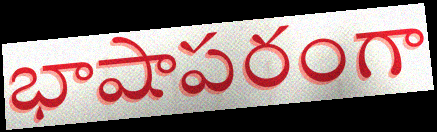
భాషాపరంగా